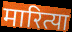
मारित्या